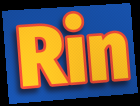
Rin